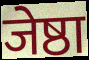
जेष्ठा